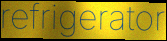
refrigerator